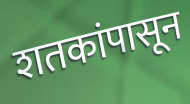
शतकांपासून